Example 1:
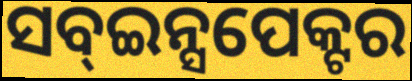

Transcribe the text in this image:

ସବ୍ଇନ୍ସପେକ୍ଟର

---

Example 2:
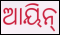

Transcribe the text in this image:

ଆୟିନ୍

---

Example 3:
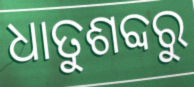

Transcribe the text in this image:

ଧାତୁଶବ୍ଦରୁ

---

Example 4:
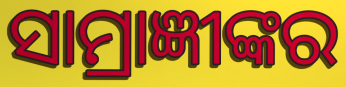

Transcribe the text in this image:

ସାମ୍ରାଜ୍ଞୀଙ୍କର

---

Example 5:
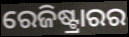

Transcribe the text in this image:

ରେଜିଷ୍ଟ୍ରାରର